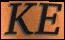
KE